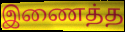
இணைத்த